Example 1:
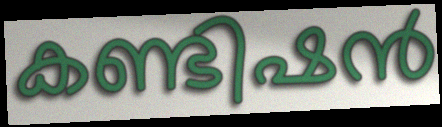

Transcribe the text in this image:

കണ്ടിഷൻ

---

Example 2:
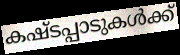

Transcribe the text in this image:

കഷ്ടപ്പാടുകൾക്ക്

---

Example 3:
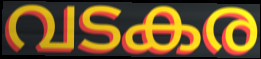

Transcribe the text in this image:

വടകര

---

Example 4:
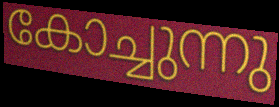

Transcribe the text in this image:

കോച്ചുന്നു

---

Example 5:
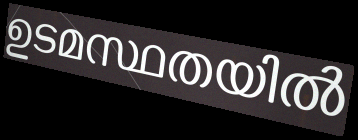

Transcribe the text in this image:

ഉടമസ്ഥതയിൽ